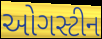
ઓગસ્ટીન